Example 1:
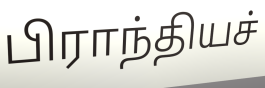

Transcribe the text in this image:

பிராந்தியச்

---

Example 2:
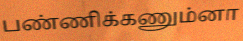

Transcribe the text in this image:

பண்ணிக்கணும்னா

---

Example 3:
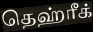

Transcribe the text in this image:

தெஹ்ரீக்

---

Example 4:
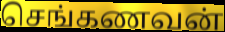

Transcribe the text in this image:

செங்கணவன்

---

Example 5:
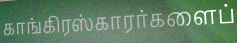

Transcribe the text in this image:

காங்கிரஸ்காரர்களைப்